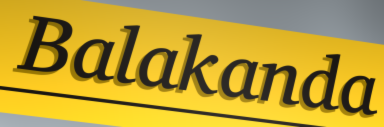
Balakanda